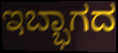
ಇಬ್ಭಾಗದ